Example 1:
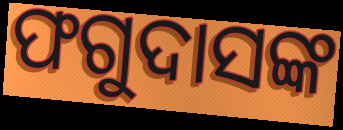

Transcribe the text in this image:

ଫଗୁଦାସଙ୍କ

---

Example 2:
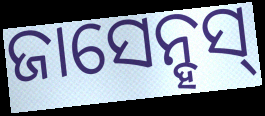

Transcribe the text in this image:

ଜାସେନ୍ହସ୍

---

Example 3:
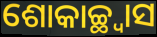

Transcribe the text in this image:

ଶୋକାଚ୍ଛ୍ୱାସ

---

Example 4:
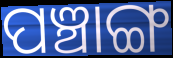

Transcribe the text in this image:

ପଞ୍ଚାଙ୍ଗ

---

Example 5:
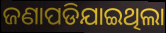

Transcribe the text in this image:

ଜଣାପଡିଯାଇଥିଲା